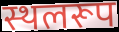
स्थलरूप